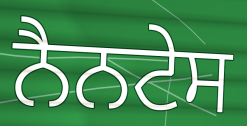
ਨੈਨਟੇਸ